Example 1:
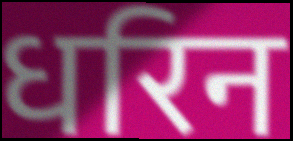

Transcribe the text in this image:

धरिन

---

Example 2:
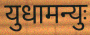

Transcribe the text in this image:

युधामन्युः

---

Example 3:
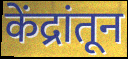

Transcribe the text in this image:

केंद्रांतून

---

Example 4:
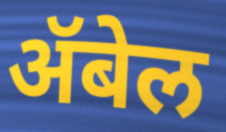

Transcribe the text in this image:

ॲबेल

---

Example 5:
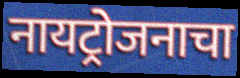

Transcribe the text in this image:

नायट्रोजनाचा